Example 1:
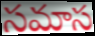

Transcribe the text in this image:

సమాస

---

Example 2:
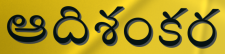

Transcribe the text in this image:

ఆదిశంకర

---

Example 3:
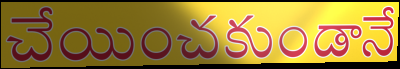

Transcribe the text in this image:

చేయించకుండానే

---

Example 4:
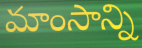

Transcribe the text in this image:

మాంసాన్ని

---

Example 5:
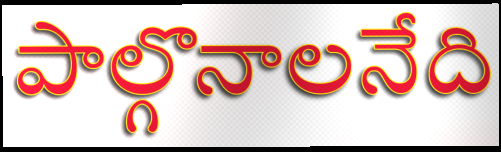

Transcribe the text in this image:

పాల్గొనాలనేది